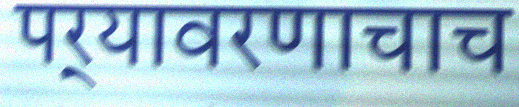
पर्यावरणाचाच